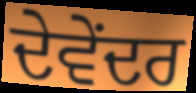
ਦੇਵੇਂਦਰ